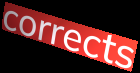
corrects